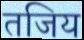
तजिय